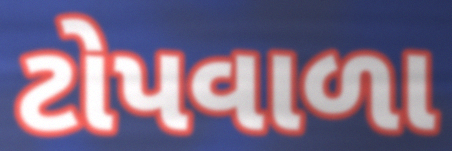
ટોપવાળા